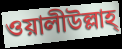
ওয়ালীউল্লাহ্